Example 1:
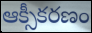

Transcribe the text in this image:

ఆక్సీకరణం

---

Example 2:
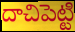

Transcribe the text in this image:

దాచిపెట్టి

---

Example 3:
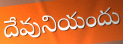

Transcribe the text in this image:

దేవునియందు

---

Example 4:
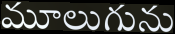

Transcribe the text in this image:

మూలుగును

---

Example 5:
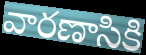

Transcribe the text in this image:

వారణాసికి